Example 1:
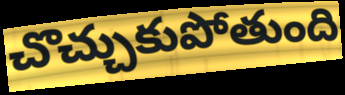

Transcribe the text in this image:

చొచ్చుకుపోతుంది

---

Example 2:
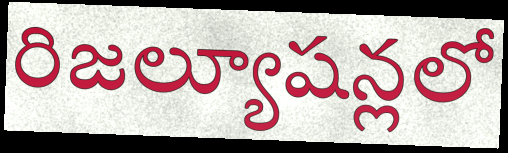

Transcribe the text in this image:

రిజల్యూషన్లలో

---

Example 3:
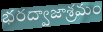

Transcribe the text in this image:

భరద్వాజాశ్రమం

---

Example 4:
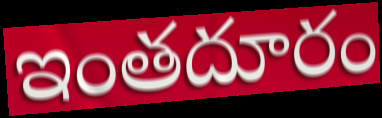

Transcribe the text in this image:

ఇంతదూరం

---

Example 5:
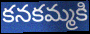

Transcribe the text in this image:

కనకమ్మకి